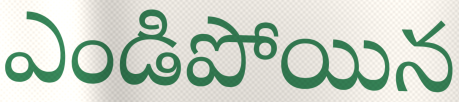
ఎండిపోయిన